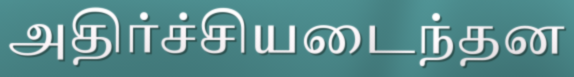
அதிர்ச்சியடைந்தன